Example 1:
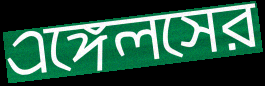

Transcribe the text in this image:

এঙ্গেলসের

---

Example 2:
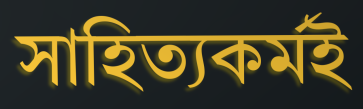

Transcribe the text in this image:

সাহিত্যকর্মই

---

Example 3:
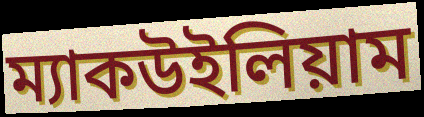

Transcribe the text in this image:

ম্যাকউইলিয়াম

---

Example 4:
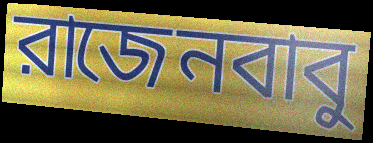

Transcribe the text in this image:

রাজেনবাবু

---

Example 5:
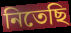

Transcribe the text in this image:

নিতেছি